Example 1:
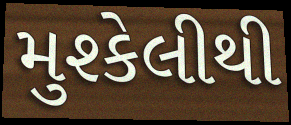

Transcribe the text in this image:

મુશ્કેલીથી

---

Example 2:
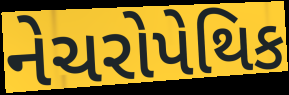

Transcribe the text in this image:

નેચરોપેથિક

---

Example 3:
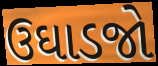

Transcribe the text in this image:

ઉઘાડજો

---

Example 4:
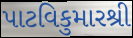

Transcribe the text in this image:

પાટવિકુમારશ્રી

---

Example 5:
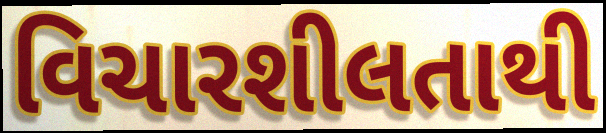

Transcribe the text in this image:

વિચારશીલતાથી